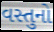
વસ્તુનો